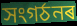
সংগঠনৰ